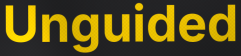
Unguided